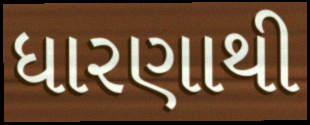
ધારણાથી